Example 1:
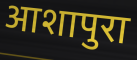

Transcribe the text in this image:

आशापुरा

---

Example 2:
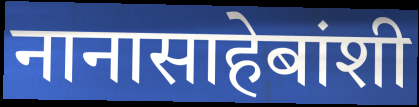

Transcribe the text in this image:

नानासाहेबांशी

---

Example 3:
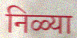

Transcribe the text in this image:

निळ्या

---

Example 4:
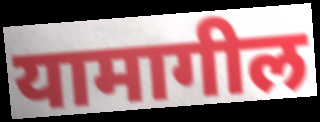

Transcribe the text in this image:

यामागील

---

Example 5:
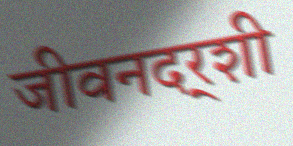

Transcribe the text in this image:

जीवनदर्शी